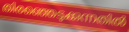
തിരഞ്ഞെടുക്കുന്നതിൽ